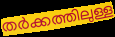
തർക്കത്തിലുള്ള